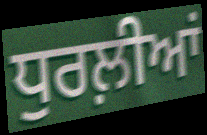
ਧੁਰਲ਼ੀਆਂ